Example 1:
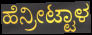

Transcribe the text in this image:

ಹೆನ್ರೀಟ್ಟಾಳ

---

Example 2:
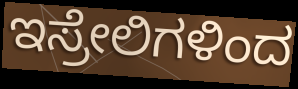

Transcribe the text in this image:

ಇಸ್ರೇಲಿಗಳಿಂದ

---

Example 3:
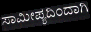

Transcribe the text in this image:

ಸಾಮೀಪ್ಯದಿಂದಾಗಿ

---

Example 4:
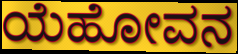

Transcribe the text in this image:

ಯೆಹೋವನ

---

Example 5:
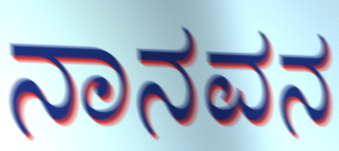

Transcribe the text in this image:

ನಾನವನ